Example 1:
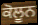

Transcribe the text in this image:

ਕੋਲੂਨ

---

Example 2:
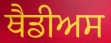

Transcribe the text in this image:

ਥੈਡੀਅਸ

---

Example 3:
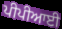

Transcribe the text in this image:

ਪੀਪੀਆਈ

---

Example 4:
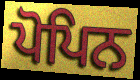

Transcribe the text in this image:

ਪੋਪਿਨ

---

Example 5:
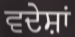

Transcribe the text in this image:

ਵਦੇਸ਼ਾਂ